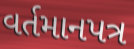
વર્તમાનપત્ર